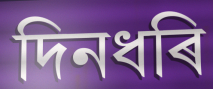
দিনধৰি